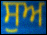
ਸੁਅ